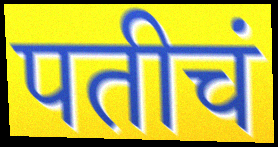
पतीचं